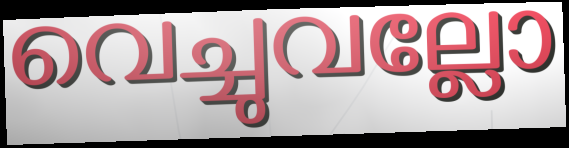
വെച്ചുവല്ലോ